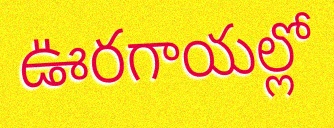
ఊరగాయల్లో